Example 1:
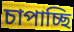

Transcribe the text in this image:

চাপাচ্ছি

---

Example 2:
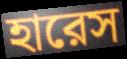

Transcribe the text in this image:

হারেস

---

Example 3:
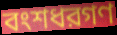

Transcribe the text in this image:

বংশধরগণ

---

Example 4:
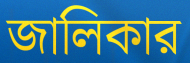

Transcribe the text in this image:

জালিকার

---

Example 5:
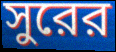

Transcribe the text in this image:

সুরের